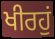
ਖੀਰਹੁਂ